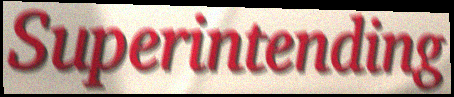
Superintending